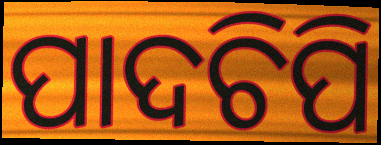
ପାଦଚିପି